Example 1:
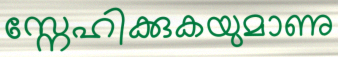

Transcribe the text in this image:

സ്നേഹിക്കുകയുമാണു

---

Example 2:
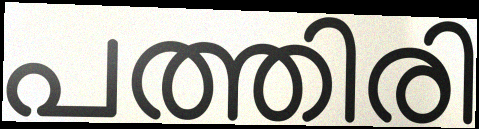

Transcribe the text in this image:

പത്തിരി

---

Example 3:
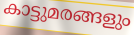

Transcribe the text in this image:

കാട്ടുമരങ്ങളും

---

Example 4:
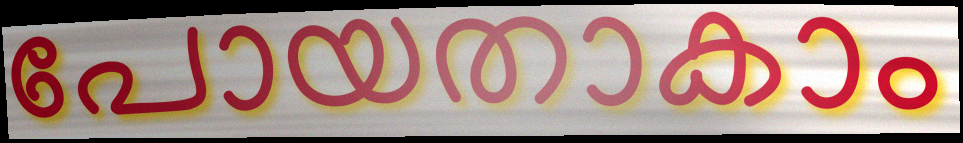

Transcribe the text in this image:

പോയതാകാം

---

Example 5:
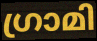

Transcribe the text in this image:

ഗ്രാമി